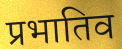
प्रभातिव